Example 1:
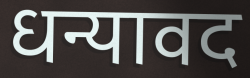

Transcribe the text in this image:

धन्यावद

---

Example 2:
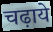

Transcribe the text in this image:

चढ़ाये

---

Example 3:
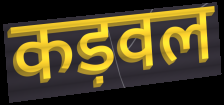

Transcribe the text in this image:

कड़वल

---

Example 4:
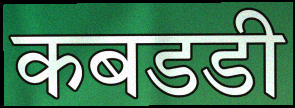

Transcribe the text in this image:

कबडडी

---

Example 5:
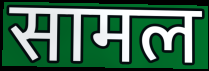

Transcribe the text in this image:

सामल